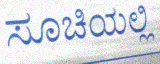
ಸೂಚಿಯಲ್ಲಿ